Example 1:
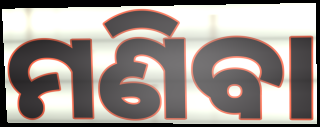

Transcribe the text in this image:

ମଣିବା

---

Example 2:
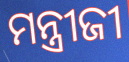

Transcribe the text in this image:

ମନ୍ତ୍ରୀଜୀ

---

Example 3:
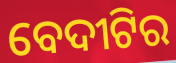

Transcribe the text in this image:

ବେଦୀଟିର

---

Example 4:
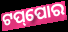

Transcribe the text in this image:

ଟପ୍‌ପୋର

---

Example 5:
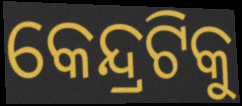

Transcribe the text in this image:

କେନ୍ଦ୍ରଟିକୁ